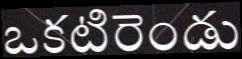
ఒకటిరెండు